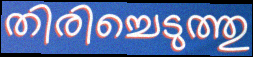
തിരിച്ചെടുത്തു